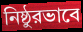
নিষ্ঠুরভাবে